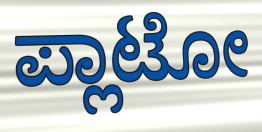
ಪ್ಲಾಟೋ